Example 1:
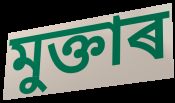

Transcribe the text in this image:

মুক্তাৰ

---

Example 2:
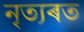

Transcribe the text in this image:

নৃত্যৰত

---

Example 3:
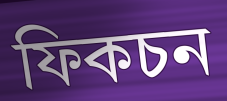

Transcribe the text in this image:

ফিকচন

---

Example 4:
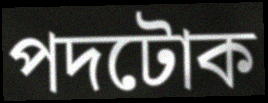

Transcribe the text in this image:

পদটোক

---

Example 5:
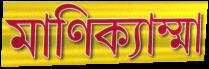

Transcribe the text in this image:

মাণিক্যাম্মা